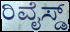
ರಿವೈಸ್ಡ್